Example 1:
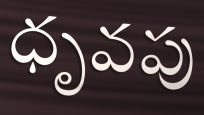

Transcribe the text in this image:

ధృవపు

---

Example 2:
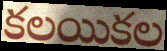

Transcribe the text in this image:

కలయికల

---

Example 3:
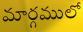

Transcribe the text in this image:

మార్గములో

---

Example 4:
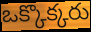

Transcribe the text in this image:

ఒక్కొక్కరు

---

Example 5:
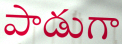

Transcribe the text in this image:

పాడుగా